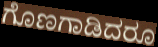
ಗೊಣಗಾಡಿದರೂ